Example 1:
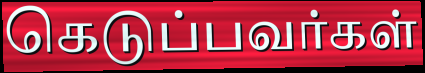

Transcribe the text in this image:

கெடுப்பவர்கள்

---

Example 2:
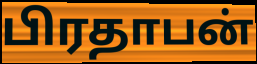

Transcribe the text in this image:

பிரதாபன்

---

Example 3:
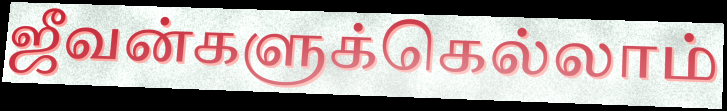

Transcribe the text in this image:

ஜீவன்களுக்கெல்லாம்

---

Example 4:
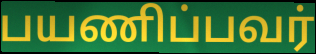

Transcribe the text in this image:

பயணிப்பவர்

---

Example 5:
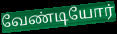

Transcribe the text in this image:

வேண்டியோர்